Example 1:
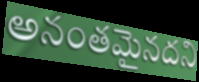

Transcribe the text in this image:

అనంతమైనదని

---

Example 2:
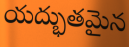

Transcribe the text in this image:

యద్భుతమైన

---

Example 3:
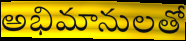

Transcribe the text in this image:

అభిమానులతో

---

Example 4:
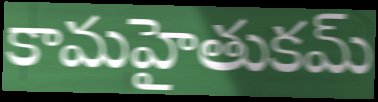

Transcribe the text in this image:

కామహైతుకమ్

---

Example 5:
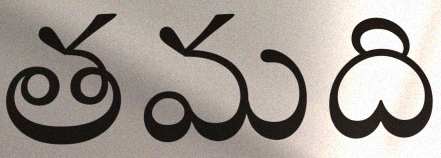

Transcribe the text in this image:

తమది